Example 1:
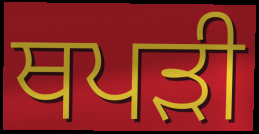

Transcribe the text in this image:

ਥਪੜੀ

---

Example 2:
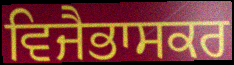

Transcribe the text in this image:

ਵਿਜੈਭਾਸਕਰ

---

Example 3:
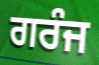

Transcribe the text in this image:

ਗਰੰਜ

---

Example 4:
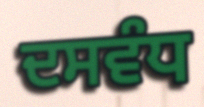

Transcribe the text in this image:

ਦਸਵੰਧ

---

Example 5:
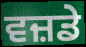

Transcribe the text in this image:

ਵਜ਼ਡੇ